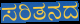
ಸರಿತನದ